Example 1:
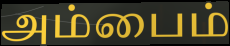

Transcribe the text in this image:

அம்பைம்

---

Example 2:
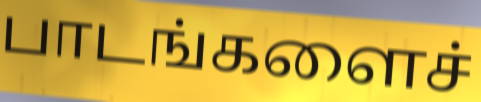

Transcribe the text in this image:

பாடங்களைச்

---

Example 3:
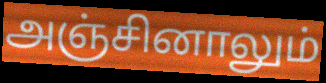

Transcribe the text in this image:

அஞ்சினாலும்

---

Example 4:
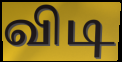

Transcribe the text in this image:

விடி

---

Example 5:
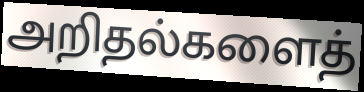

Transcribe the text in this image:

அறிதல்களைத்